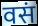
वसं